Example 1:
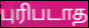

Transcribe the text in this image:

புரிபடாத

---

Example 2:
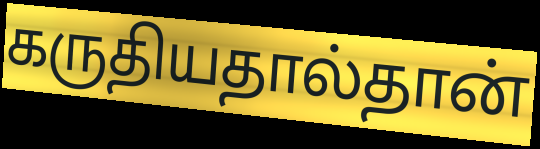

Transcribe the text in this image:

கருதியதால்தான்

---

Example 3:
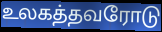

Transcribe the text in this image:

உலகத்தவரோடு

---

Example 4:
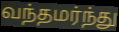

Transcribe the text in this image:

வந்தமர்ந்து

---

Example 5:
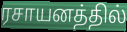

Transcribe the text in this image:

ரசாயனத்தில்